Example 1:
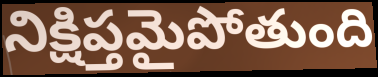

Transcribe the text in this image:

నిక్షిప్తమైపోతుంది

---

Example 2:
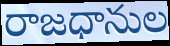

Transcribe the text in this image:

రాజధానుల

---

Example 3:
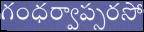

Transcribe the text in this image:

గంధర్వాప్సరసో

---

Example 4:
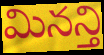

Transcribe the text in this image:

మినన్తి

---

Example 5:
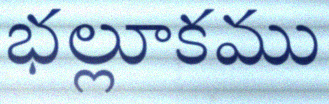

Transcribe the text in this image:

భల్లూకము